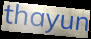
thayun